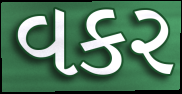
વકર